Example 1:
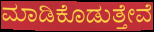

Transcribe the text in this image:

ಮಾಡಿಕೊಡುತ್ತೇವೆ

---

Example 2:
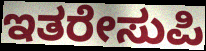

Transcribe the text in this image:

ಇತರೇಸುಪಿ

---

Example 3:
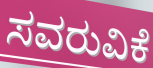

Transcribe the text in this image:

ಸವರುವಿಕೆ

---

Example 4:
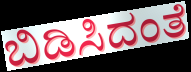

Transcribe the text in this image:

ಬಿಡಿಸಿದಂತೆ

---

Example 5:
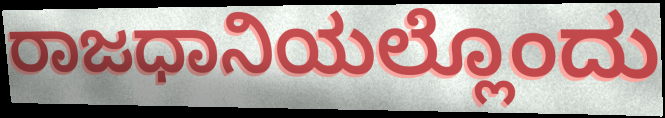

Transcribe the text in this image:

ರಾಜಧಾನಿಯಲ್ಲೊಂದು